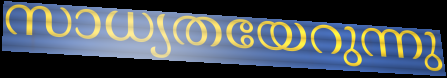
സാധ്യതയേറുന്നു